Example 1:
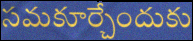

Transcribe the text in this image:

సమకూర్చేందుకు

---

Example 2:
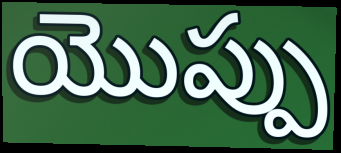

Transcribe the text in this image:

యొప్పు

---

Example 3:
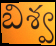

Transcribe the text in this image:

బిశ్వ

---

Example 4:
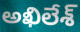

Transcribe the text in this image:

అఖిలేశ్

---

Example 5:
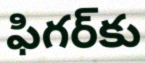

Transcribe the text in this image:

ఫిగర్‌కు